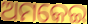
ଅମକେଇ